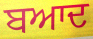
ਬਆਦ